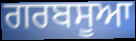
ਗਰਬਸੂਆ